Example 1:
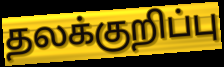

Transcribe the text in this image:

தலக்குறிப்பு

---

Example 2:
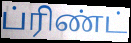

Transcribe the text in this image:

ப்ரிண்ட்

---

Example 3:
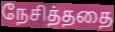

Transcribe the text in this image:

நேசித்ததை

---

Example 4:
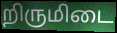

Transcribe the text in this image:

றிருமிடை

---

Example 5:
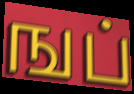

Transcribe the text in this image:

ஙப்